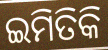
ଇମିତିକି